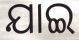
ଯାଇ